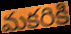
మకరికి